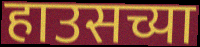
हाउसच्या